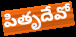
పితృదేవో